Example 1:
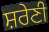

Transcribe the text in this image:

ਸ਼ਰੇਣੀ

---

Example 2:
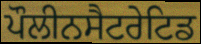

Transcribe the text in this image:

ਪੌਲੀਨਸੈਟਰੇਟਿਡ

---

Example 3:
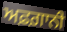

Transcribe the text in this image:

ਅਫ਼ਗ਼ਾਨੀ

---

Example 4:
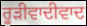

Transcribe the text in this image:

ਰੂੜੀਵਾਦੀਵਾਦ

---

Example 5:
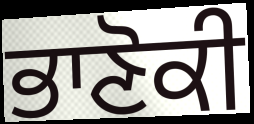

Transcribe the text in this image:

ਭਾਣੋਕੀ